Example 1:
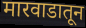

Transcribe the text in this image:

मारवाडातून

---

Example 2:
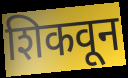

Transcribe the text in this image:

शिकवून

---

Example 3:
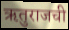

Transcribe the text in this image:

ऋतुराजची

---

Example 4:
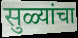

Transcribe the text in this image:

सुळ्यांचा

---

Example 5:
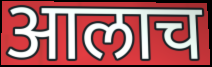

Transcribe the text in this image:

आलाच